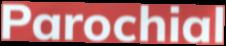
Parochial